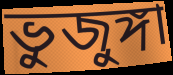
ভুজুঙ্গা